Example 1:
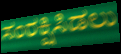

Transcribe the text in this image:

ಸಂರಕ್ಷಿಸಿಡಲು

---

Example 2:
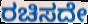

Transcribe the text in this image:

ರಚಿಸದೇ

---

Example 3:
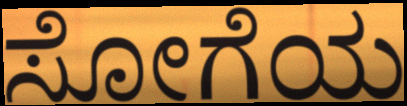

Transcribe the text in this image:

ಸೋಗೆಯ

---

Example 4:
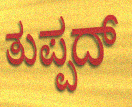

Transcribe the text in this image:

ತುಪ್ಪದ್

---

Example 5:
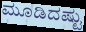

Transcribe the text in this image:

ಮೂಡಿದಷ್ಟು